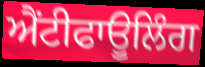
ਐਂਟੀਫਾਊਲਿੰਗ